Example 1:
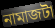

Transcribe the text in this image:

নামাজটা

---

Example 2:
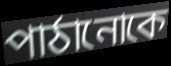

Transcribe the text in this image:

পাঠানোকে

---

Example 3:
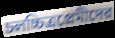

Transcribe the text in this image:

চলচ্চিত্রপ্রেমীদের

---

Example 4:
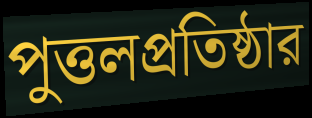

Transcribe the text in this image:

পুত্তলপ্রতিষ্ঠার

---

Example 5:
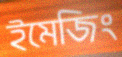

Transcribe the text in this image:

ইমেজিং